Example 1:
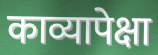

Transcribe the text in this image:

काव्यापेक्षा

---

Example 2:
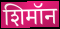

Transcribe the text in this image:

शिमॉन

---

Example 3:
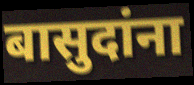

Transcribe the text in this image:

बासुदांना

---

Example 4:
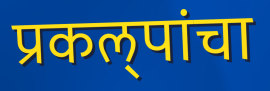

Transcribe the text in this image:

प्रकल्पांचा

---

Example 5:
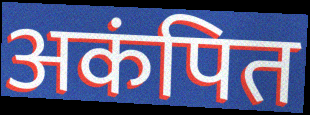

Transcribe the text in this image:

अकंपित